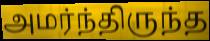
அமர்ந்திருந்த